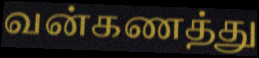
வன்கணத்து